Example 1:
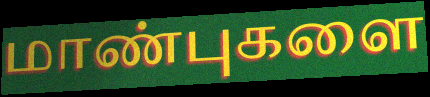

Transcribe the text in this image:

மாண்புகளை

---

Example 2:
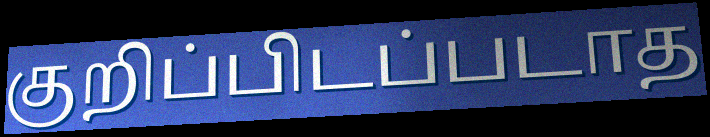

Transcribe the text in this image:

குறிப்பிடப்படாத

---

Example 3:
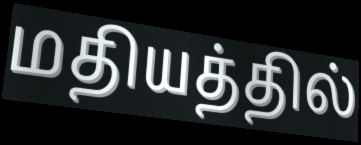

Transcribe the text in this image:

மதியத்தில்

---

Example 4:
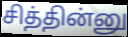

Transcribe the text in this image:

சித்தின்னு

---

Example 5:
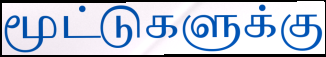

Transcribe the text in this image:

மூட்டுகளுக்கு